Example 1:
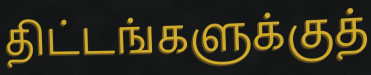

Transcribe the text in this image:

திட்டங்களுக்குத்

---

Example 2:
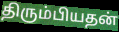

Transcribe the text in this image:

திரும்பியதன்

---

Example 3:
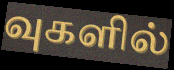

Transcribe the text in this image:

வுகளில்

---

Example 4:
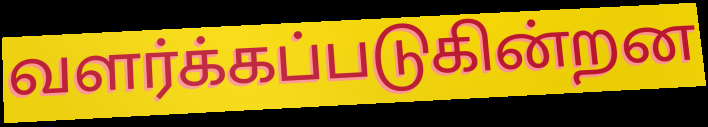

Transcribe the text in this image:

வளர்க்கப்படுகின்றன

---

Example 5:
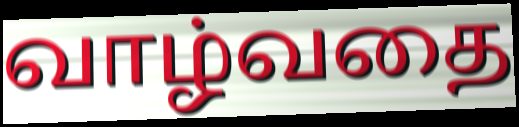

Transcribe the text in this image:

வாழ்வதை